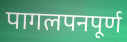
पागलपनपूर्ण